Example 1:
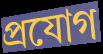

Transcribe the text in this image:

প্ৰযোগ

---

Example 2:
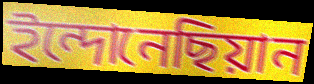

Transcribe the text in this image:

ইন্দোনেছিয়ান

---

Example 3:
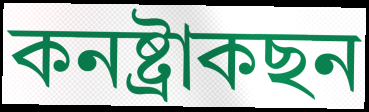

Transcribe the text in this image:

কনষ্ট্ৰাকছন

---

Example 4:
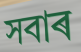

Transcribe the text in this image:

সবাৰ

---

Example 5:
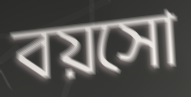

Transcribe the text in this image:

বয়সো